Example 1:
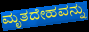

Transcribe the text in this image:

ಮೃತದೇಹವನ್ನು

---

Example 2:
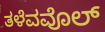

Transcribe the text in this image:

ತಳೆವವೊಲ್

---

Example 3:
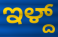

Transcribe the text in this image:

ಇಳ್ದ್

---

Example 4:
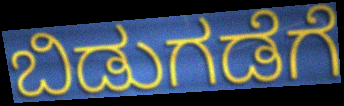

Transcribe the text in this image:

ಬಿಡುಗಡೆಗೆ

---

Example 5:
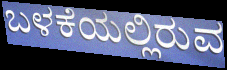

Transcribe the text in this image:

ಬಳಕೆಯಲ್ಲಿರುವ